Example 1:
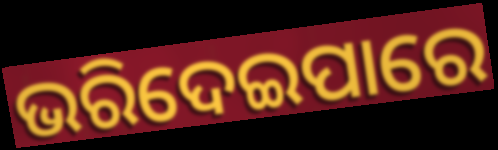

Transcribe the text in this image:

ଭରିଦେଇପାରେ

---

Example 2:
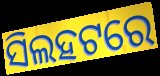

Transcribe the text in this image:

ସିଲହଟରେ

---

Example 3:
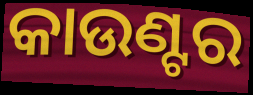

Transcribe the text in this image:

କାଉଣ୍ଟର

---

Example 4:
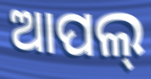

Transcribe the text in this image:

ଆପଲ୍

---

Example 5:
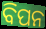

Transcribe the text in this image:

ବିପନ